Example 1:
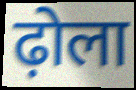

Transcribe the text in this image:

ढ़ोला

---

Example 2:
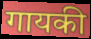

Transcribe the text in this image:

गायकी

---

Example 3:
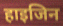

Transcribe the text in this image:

हाइजिन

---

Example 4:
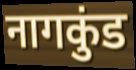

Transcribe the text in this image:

नागकुंड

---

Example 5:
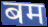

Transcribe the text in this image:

बम